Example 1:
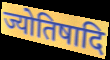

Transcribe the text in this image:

ज्योतिषादि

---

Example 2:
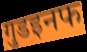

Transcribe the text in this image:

गुडइनफ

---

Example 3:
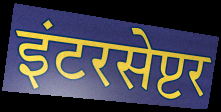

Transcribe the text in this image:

इंटरसेप्टर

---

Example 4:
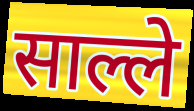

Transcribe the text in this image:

साल्ले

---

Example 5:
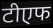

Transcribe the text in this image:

टीएफ